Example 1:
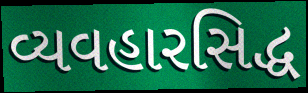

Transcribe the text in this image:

વ્યવહારસિદ્ધ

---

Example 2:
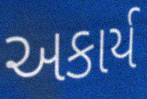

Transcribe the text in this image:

અકાર્ય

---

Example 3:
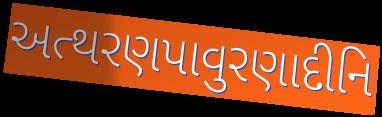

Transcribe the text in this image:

અત્થરણપાવુરણાદીનિ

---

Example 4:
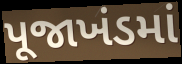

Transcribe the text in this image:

પૂજાખંડમાં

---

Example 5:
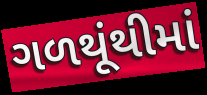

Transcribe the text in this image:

ગળથૂંથીમાં